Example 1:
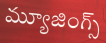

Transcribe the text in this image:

మ్యూజింగ్స్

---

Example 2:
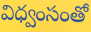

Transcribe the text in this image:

విధ్వంసంతో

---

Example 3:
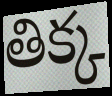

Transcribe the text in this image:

తిక్క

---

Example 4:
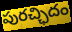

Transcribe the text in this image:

పురచ్ఛిదం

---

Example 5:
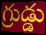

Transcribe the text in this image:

గ్రుడ్డు